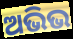
ଅଭିଭ